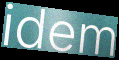
idem